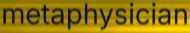
metaphysician